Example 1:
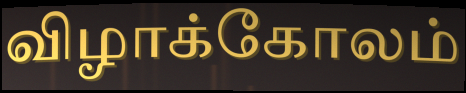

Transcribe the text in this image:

விழாக்கோலம்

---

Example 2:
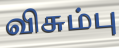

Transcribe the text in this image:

விசும்பு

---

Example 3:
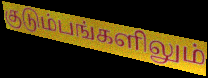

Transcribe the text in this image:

குடும்பங்களிலும்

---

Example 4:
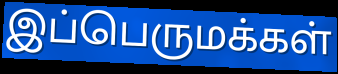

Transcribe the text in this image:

இப்பெருமக்கள்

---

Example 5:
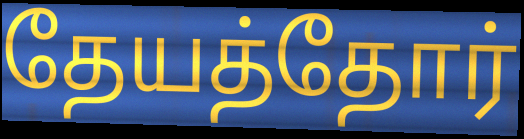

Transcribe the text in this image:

தேயத்தோர்